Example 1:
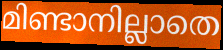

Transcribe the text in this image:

മിണ്ടാനില്ലാതെ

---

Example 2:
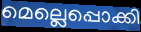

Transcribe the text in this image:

മെല്ലെപ്പൊക്കി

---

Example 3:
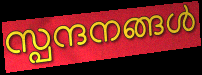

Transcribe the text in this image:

സ്പന്ദനങ്ങൾ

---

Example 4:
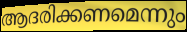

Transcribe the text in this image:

ആദരിക്കണമെന്നും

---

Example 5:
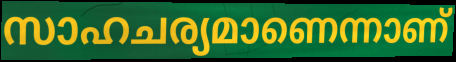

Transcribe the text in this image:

സാഹചര്യമാണെന്നാണ്